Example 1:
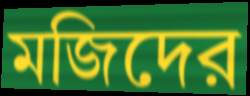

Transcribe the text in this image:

মজিদের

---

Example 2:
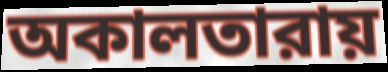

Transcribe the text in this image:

অকালতারায়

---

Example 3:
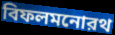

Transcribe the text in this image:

বিফলমনোরথ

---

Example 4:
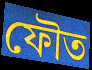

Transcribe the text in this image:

ফৌত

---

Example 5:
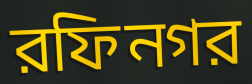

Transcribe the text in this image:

রফিনগর